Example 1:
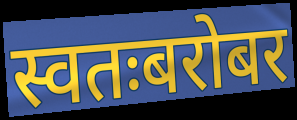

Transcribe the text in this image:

स्वतःबरोबर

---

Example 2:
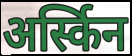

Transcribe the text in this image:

अर्स्किन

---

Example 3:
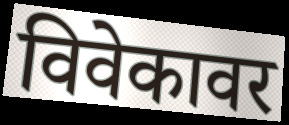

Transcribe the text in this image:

विवेकावर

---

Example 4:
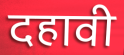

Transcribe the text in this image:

दहावी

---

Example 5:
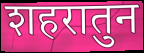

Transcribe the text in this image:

शहरातुन